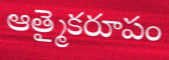
ఆత్మైకరూపం